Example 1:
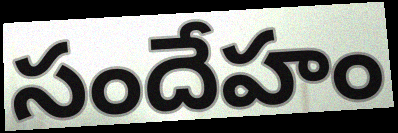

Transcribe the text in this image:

సందేహం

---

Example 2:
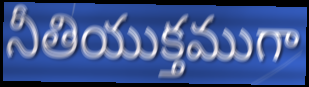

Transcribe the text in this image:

నీతియుక్తముగా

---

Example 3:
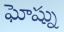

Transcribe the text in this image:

ఘోష్ను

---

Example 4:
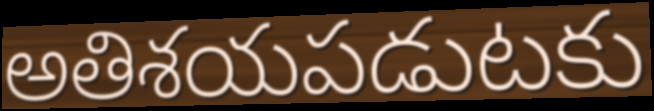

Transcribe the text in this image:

అతిశయపడుటకు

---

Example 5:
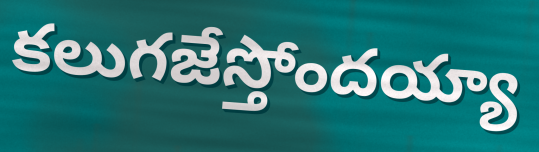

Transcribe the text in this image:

కలుగజేస్తోందయ్యా